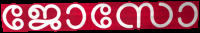
ജോസോ